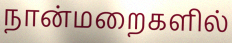
நான்மறைகளில்